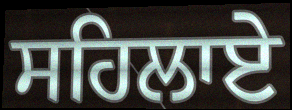
ਸਹਿਲਾਏ